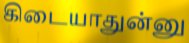
கிடையாதுன்னு